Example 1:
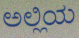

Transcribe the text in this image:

ಅಲ್ಲಿಯ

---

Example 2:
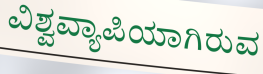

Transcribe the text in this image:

ವಿಶ್ವವ್ಯಾಪಿಯಾಗಿರುವ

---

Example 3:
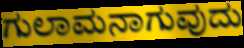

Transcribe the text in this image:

ಗುಲಾಮನಾಗುವುದು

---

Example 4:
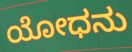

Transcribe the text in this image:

ಯೋಧನು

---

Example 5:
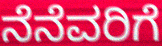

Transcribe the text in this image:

ನೆನೆವರಿಗೆ